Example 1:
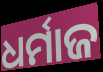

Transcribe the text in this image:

ଧର୍ମାଜ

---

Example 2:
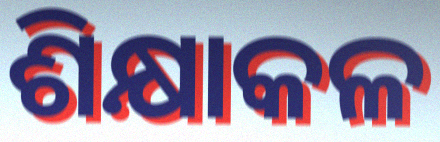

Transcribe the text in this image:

ଶିକ୍ଷାକଳ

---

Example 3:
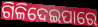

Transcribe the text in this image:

ଗିଳିଦେଇପାରେ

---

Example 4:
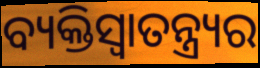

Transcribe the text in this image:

ବ୍ୟକ୍ତିସ୍ୱାତନ୍ତ୍ର୍ୟର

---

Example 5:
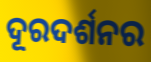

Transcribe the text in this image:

ଦୂରଦର୍ଶନର